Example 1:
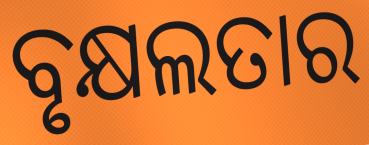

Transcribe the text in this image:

ବୃକ୍ଷଲତାର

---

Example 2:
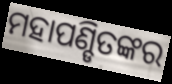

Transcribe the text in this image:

ମହାପଣ୍ଡିତଙ୍କର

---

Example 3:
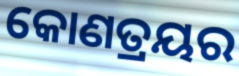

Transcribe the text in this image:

କୋଣତ୍ରୟର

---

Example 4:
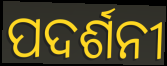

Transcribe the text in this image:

ପଦର୍ଶନୀ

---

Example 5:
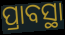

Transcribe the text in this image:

ପ୍ରାବସ୍ଥା